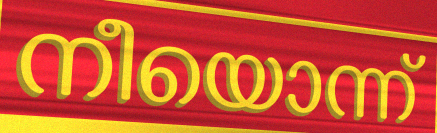
നീയൊന്ന്